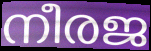
നീരജ